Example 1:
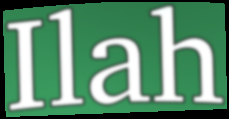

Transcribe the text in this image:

Ilah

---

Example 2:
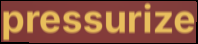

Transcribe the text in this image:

pressurize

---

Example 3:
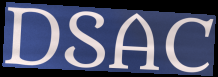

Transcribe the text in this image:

DSAC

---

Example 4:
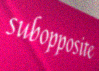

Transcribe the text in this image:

subopposite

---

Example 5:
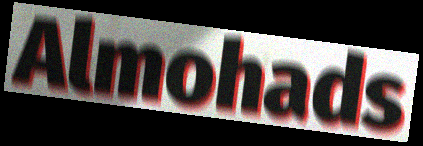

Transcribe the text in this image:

Almohads